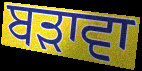
ਬੜਾਵਾ